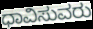
ಧಾವಿಸುವರು